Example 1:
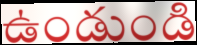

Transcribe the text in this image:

ఉండుండి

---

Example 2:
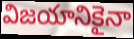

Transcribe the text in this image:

విజయానికైనా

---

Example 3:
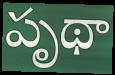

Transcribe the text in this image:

పృథా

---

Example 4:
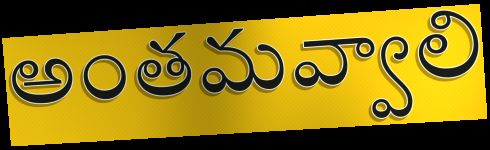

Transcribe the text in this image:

అంతమవ్వాలి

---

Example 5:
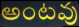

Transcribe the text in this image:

అంటవు